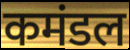
कमंडल